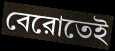
বেরোতেই